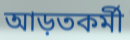
আড়তকর্মী